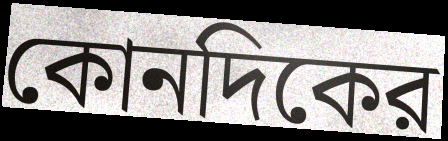
কোনদিকের